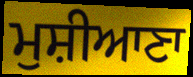
ਮੁਸ਼ੀਆਣਾ